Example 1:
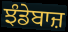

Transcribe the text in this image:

ਝੰਡੇਬਾਜ਼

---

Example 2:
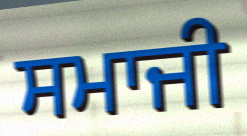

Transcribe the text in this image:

ਸਮਾਜੀ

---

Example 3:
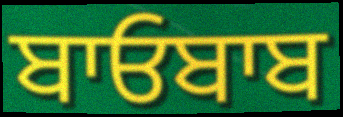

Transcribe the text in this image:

ਬਾਓਬਾਬ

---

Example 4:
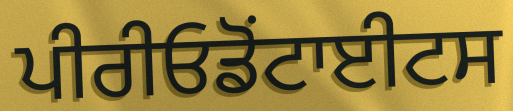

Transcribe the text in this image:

ਪੀਰੀਓਡੋਂਟਾਈਟਸ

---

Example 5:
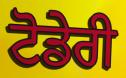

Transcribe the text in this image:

ਟੋਡੇਰੀ